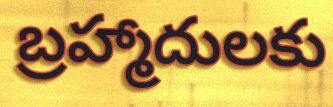
బ్రహ్మాదులకు